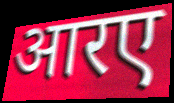
आरए